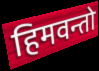
हिमवन्तो